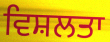
ਵਿਸ਼ਲਤਾ